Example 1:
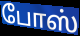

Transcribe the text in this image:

போஸ்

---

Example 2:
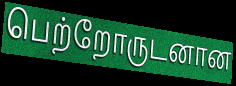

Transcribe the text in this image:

பெற்றோருடனான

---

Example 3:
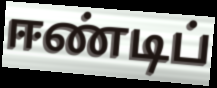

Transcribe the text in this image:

ஈண்டிப்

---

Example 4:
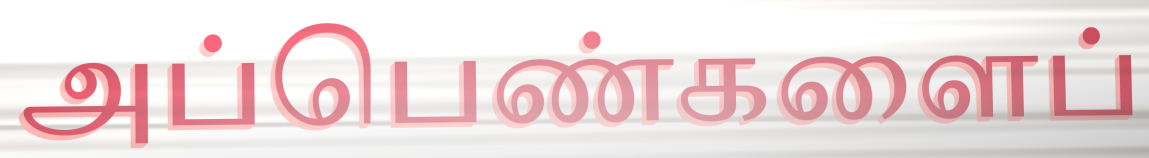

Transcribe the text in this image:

அப்பெண்களைப்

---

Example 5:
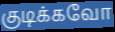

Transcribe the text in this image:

குடிக்கவோ